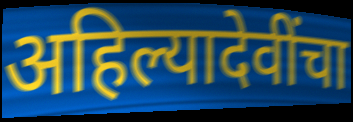
अहिल्यादेवींचा